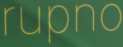
rupno